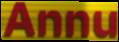
Annu